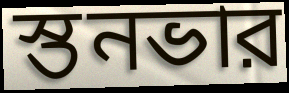
স্তনভার